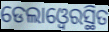
ଡେଲାଓ୍ବେରସ୍ଥିତ